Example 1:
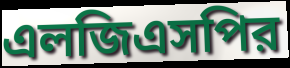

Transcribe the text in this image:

এলজিএসপির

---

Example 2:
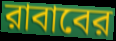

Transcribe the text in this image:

রাবাবের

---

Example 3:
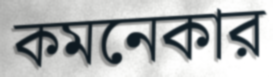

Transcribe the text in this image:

কমনেকার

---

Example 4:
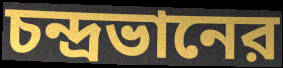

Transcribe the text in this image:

চন্দ্রভানের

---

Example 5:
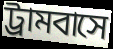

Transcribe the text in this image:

ট্রামবাসে